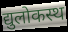
द्युलोकस्थ